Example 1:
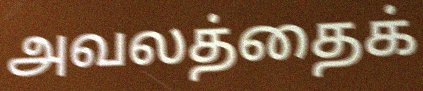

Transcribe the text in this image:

அவலத்தைக்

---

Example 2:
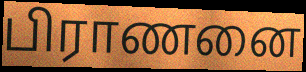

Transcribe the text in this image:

பிராணனை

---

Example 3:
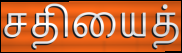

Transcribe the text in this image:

சதியைத்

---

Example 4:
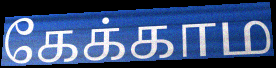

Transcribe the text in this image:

கேக்காம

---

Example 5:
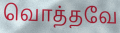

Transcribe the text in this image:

வொத்தவே